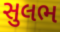
સુલભ